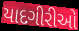
યાદગીરીઓ